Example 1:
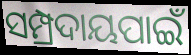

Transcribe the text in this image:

ସମ୍ପ୍ରଦାୟପାଇଁ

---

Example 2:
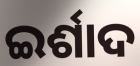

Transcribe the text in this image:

ଇର୍ଶାଦ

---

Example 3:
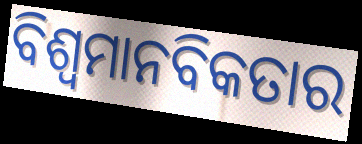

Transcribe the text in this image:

ବିଶ୍ଵମାନବିକତାର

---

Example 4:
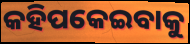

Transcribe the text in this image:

କହିପକେଇବାକୁ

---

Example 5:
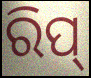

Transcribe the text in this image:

ରିପ୍